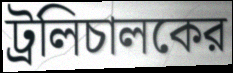
ট্রলিচালকের